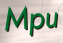
Mpu